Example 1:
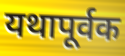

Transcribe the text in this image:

यथापूर्वक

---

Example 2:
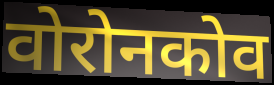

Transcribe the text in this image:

वोरोनकोव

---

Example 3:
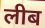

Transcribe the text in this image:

लीब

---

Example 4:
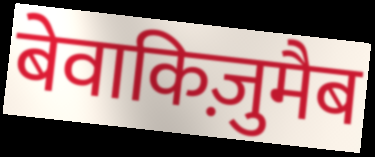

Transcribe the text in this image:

बेवाकिज़ुमैब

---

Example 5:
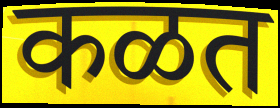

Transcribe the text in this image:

कळत